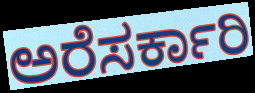
ಅರೆಸರ್ಕಾರಿ